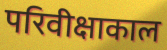
परिवीक्षाकाल